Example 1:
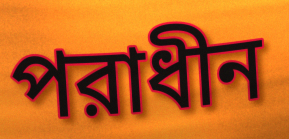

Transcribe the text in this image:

পরাধীন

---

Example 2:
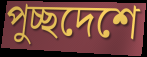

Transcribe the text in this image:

পুচ্ছদেশে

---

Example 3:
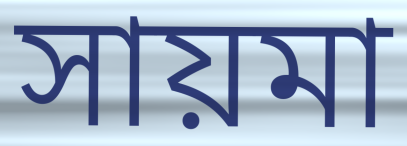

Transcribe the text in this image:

সায়মা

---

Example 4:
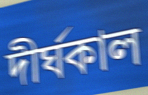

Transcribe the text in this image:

দীর্ঘকাল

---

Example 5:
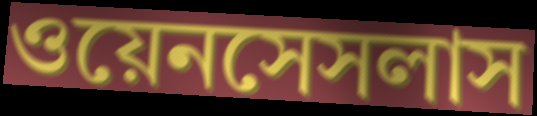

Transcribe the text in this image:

ওয়েনসেসলাস